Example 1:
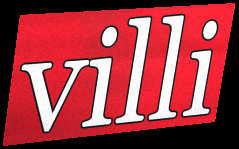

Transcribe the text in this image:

villi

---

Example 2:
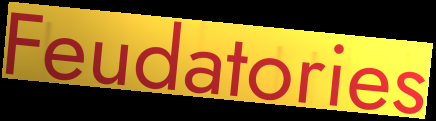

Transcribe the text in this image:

Feudatories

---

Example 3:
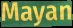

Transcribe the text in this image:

Mayan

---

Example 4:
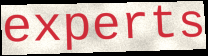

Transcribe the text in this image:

experts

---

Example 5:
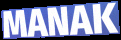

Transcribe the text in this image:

MANAK